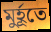
মুর্হূতে